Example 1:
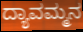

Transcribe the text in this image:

ದ್ಯಾವಮ್ಮನ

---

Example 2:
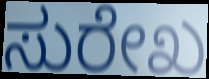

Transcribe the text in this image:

ಸುರೇಖ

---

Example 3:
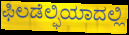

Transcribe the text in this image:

ಫಿಲಡೆಲ್ಫಿಯಾದಲ್ಲಿ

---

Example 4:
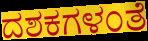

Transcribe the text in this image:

ದಶಕಗಳಂತೆ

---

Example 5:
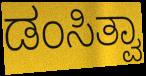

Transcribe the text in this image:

ಡಂಸಿತ್ವಾ